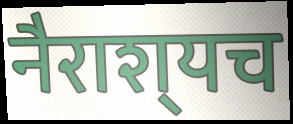
नैराश्यच